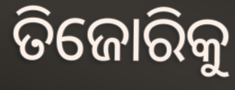
ତିଜୋରିକୁ